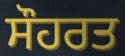
ਸੌਹਰਤ